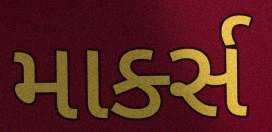
માર્ક્સ